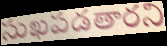
సుఖపడతారని